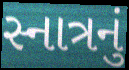
સ્નાત્રનું